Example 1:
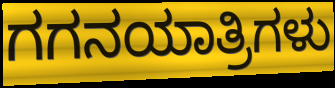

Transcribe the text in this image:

ಗಗನಯಾತ್ರಿಗಳು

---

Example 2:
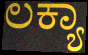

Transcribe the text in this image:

ಲಕ್ಯಾ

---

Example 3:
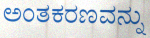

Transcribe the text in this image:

ಅಂತಕರಣವನ್ನು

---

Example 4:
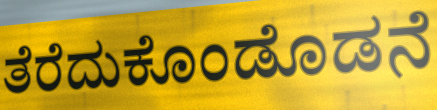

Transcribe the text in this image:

ತೆರೆದುಕೊಂಡೊಡನೆ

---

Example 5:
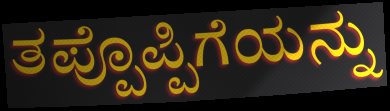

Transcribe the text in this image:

ತಪ್ಪೊಪ್ಪಿಗೆಯನ್ನು